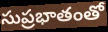
సుప్రభాతంతో